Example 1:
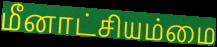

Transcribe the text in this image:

மீனாட்சியம்மை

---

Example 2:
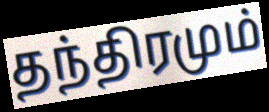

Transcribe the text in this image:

தந்திரமும்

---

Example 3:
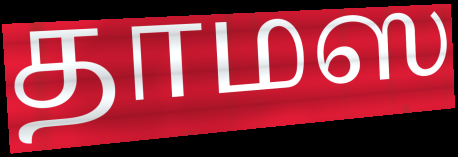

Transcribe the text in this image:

தாமஸ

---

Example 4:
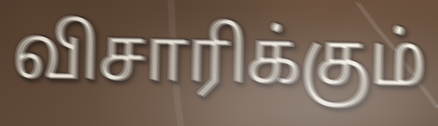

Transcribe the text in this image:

விசாரிக்கும்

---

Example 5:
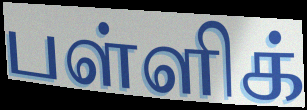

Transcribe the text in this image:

பள்ளிக்